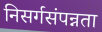
निसर्गसंपन्नता